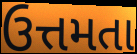
ઉત્તમતા